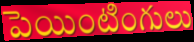
పెయింటింగులు